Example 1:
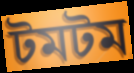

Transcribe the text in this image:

টমটম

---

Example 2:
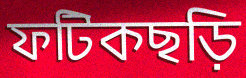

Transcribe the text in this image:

ফটিকছড়ি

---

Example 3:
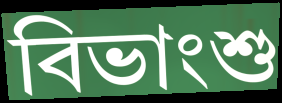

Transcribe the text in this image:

বিভাংশু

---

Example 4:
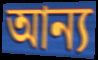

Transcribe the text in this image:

আন্য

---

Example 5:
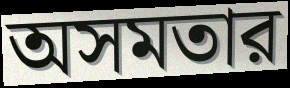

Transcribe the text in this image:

অসমতার